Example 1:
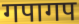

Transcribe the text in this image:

गपागप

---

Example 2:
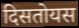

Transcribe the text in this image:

दिसतोयस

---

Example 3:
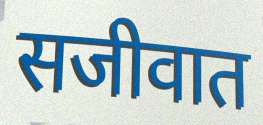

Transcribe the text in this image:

सजीवात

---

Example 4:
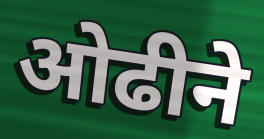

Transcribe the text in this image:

ओढीने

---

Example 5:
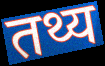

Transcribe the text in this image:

तथ्य